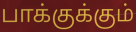
பாக்குக்கும்